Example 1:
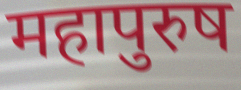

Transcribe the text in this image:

महापुरुष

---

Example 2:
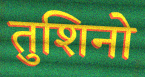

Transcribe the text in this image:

तुशिनो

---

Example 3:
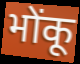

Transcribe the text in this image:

भोंकू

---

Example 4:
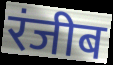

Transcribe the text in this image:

रंजीब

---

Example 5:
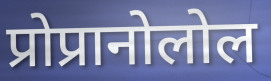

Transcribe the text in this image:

प्रोप्रानोलोल